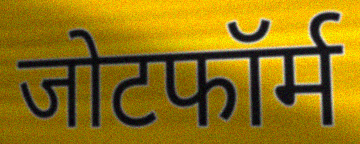
जोटफॉर्म